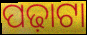
ପଢ଼ାଟା